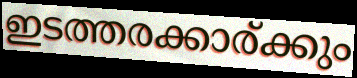
ഇടത്തരക്കാര്ക്കും